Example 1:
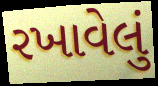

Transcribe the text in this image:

રખાવેલું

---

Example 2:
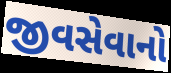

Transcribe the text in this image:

જીવસેવાનો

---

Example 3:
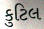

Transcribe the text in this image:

કુટિલ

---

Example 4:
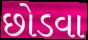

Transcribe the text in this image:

છોડવા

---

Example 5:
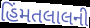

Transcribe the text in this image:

હિંમતલાલની